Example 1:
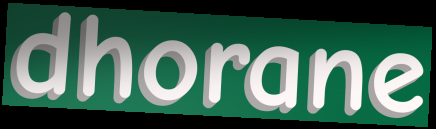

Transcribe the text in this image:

dhorane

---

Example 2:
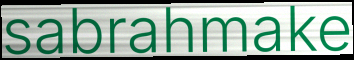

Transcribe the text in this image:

sabrahmake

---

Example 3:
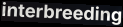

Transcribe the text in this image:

interbreeding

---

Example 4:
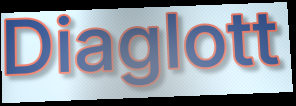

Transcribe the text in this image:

Diaglott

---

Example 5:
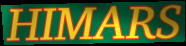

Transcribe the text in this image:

HIMARS